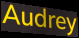
Audrey